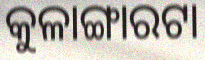
କୁଳାଙ୍ଗାରଟା